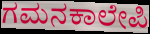
ಗಮನಕಾಲೇಪಿ